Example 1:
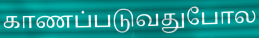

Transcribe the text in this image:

காணப்படுவதுபோல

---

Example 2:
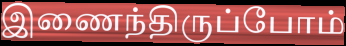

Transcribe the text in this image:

இணைந்திருப்போம்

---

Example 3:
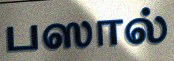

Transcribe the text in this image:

பஸால்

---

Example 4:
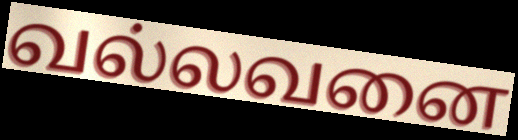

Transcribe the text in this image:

வல்லவனை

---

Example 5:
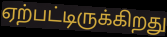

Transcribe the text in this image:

ஏற்பட்டிருக்கிறது